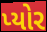
પ્યોર